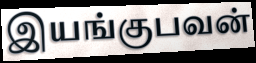
இயங்குபவன்